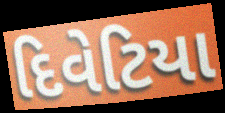
દિવેટિયા